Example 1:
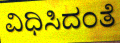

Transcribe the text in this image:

ವಿಧಿಸಿದಂತೆ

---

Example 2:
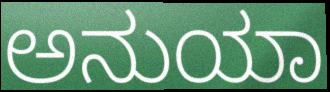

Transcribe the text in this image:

ಅನುಯಾ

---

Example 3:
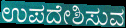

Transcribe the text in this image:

ಉಪದೇಶಿಸುವ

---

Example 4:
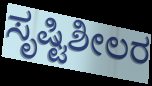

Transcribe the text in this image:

ಸೃಷ್ಟಿಶೀಲರ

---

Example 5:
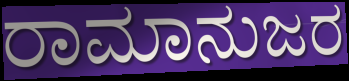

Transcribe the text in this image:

ರಾಮಾನುಜರ